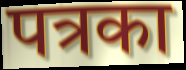
पत्रका